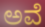
ಅವೆ